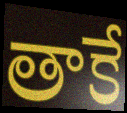
తాకే